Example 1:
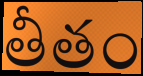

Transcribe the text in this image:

తీతం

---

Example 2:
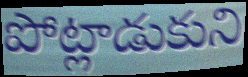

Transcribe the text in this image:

పోట్లాడుకుని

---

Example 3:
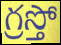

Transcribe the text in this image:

గ్రస్తో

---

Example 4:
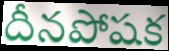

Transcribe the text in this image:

దీనపోషక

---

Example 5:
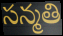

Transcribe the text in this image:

సన్మతి